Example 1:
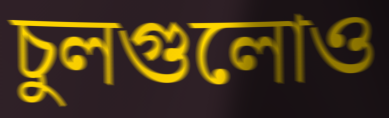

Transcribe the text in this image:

চুলগুলোও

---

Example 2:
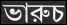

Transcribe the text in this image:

ভারুচ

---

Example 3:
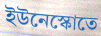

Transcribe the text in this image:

ইউনেস্কোতে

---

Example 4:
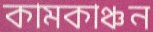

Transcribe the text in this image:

কামকাঞ্চন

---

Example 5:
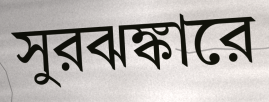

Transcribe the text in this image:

সুরঝঙ্কারে